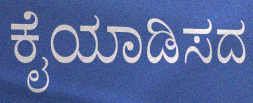
ಕೈಯಾಡಿಸದ